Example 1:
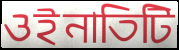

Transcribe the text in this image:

ওইনাতিটি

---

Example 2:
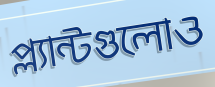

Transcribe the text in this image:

প্ল্যান্টগুলোও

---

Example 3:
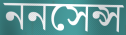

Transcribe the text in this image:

ননসেন্স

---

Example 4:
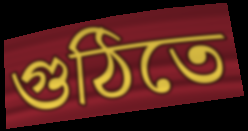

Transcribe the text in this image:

গুঠিতে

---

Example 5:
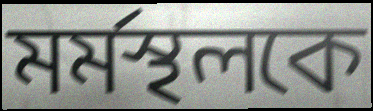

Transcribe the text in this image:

মর্মস্থলকে